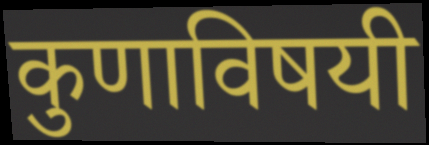
कुणाविषयी